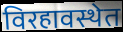
विरहावस्थेत